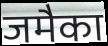
जमैका